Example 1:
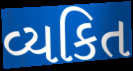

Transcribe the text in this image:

વ્યકિત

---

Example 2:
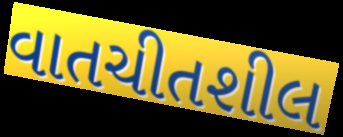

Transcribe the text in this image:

વાતચીતશીલ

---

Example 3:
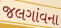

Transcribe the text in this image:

જલગાંવના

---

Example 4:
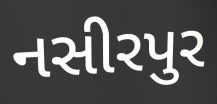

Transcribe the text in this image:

નસીરપુર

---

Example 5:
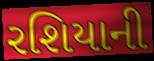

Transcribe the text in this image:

રશિયાની